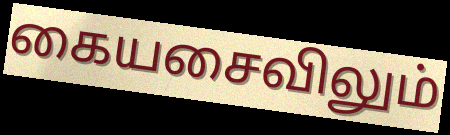
கையசைவிலும்